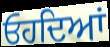
ਓਹਦਿਆਂ